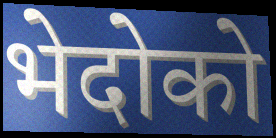
भेदोको